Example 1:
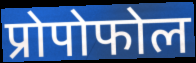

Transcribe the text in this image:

प्रोपोफोल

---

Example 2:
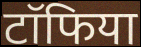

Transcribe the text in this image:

टॉफिया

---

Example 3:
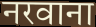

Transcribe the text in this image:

नरवाना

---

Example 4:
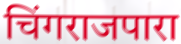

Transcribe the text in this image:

चिंगराजपारा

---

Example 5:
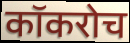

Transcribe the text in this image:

कॉकरोच